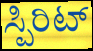
ಸ್ಪಿರಿಟ್